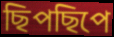
ছিপছিপে